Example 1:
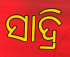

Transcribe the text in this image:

ସାଦ୍ରି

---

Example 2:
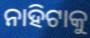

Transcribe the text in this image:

ନାହିଟାକୁ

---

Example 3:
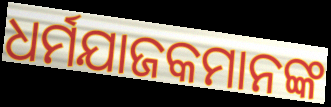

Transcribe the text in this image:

ଧର୍ମଯାଜକମାନଙ୍କ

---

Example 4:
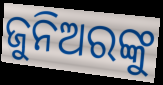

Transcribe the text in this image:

ଜୁନିଅରଙ୍କୁ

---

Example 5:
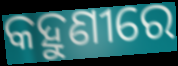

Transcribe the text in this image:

କହୁଣୀରେ